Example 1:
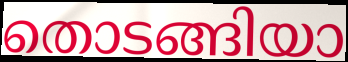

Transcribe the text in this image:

തൊടങ്ങിയാ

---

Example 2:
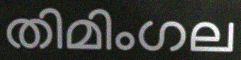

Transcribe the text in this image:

തിമിംഗല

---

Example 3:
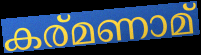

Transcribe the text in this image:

കര്മണാമ്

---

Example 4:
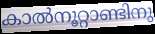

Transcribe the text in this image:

കാൽനൂറ്റാണ്ടിനു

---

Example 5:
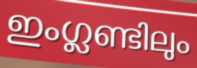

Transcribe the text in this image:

ഇംഗ്ലണ്ടിലും